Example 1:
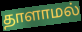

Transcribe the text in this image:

தாளாமல்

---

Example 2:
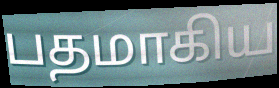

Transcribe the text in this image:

பதமாகிய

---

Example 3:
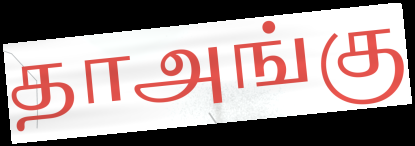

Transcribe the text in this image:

தாஅங்கு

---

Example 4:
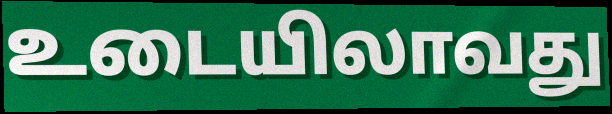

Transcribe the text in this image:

உடையிலாவது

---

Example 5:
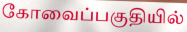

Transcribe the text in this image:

கோவைப்பகுதியில்